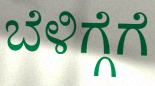
ಬೆಳಿಗ್ಗೆಗೆ